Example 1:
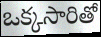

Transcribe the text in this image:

ఒక్కసారితో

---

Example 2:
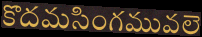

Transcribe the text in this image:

కొదమసింగమువలె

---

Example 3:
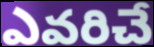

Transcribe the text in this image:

ఎవరిచే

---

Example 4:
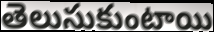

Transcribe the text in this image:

తెలుసుకుంటాయి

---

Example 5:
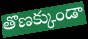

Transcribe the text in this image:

తొణక్కుండా